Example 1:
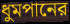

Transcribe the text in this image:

ধুমপানের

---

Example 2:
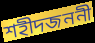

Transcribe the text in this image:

শহীদজননী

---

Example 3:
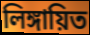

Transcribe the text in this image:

লিঙ্গায়িত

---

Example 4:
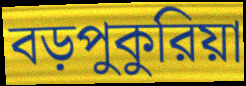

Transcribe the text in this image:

বড়পুকুরিয়া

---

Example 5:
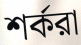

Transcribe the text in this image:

শর্করা